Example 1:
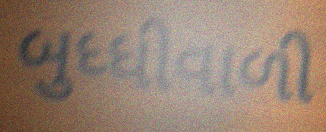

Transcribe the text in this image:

બુધ્ધીવાળી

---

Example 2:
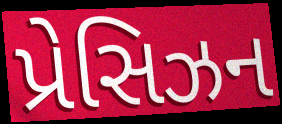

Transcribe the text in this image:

પ્રેસિઝન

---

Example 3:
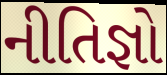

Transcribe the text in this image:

નીતિજ્ઞો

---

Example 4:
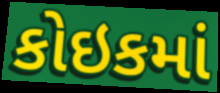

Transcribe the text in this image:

કોઇકમાં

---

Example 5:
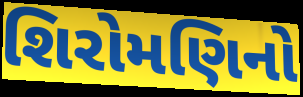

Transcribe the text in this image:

શિરોમણિનો